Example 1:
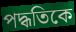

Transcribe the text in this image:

পদ্ধতিকে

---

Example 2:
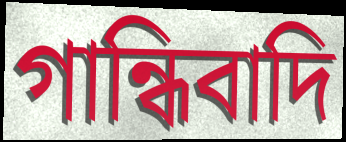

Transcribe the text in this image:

গান্ধিবাদি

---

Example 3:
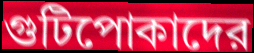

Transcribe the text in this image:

গুটিপোকাদের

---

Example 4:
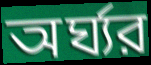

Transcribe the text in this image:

অর্ঘ্যর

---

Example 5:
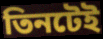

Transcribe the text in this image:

তিনটেই